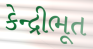
કેન્દ્રીભૂત